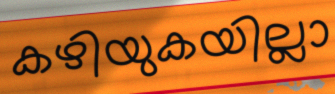
കഴിയുകയില്ലാ